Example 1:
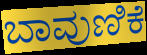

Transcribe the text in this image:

ಬಾವುಣಿಕೆ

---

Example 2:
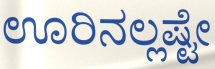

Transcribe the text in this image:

ಊರಿನಲ್ಲಷ್ಟೇ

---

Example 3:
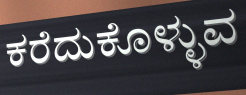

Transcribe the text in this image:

ಕರೆದುಕೊಳ್ಳುವ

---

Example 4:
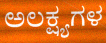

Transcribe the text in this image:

ಅಲಕ್ಷ್ಯಗಳ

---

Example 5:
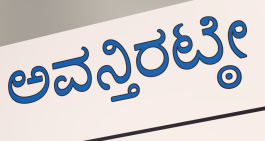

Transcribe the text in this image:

ಅವನ್ತಿರಟ್ಠೇ